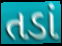
તડાં